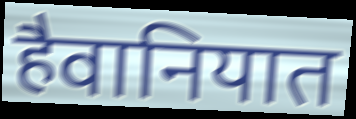
हैवानियात